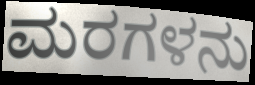
ಮರಗಳನು